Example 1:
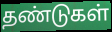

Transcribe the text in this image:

தண்டுகள்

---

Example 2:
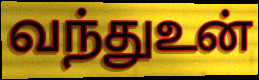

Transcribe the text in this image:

வந்துஉன்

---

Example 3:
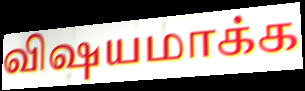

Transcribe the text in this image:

விஷயமாக்க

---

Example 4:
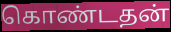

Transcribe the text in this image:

கொண்டதன்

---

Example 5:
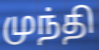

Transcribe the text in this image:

முந்தி